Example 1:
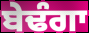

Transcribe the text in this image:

ਬੇਢੰਗਾ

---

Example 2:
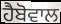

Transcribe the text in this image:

ਹੈਬੋਵਾਲ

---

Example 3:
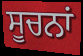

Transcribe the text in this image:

ਸੂਚਨਾਂ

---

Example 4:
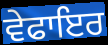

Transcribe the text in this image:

ਵੇਫਾਇਰ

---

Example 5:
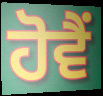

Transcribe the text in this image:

ਹੋਵੈਂ